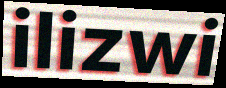
ilizwi